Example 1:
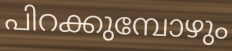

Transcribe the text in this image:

പിറക്കുമ്പോഴും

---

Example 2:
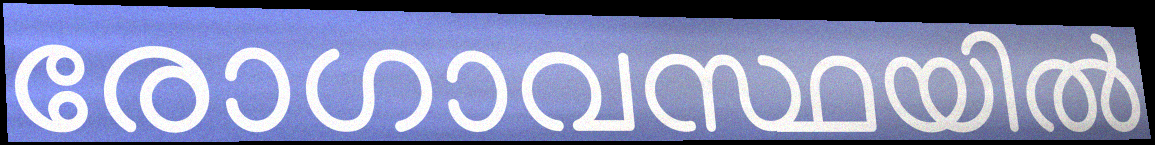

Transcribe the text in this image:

രോഗാവസ്ഥയിൽ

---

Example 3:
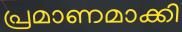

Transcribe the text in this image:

പ്രമാണമാക്കി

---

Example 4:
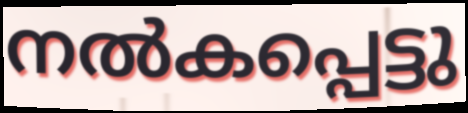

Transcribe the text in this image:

നൽകപ്പെട്ടു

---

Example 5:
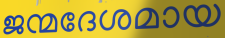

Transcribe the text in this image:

ജന്മദേശമായ